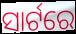
ସାର୍ଟରେ